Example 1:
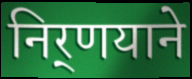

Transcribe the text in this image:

निर्णयाने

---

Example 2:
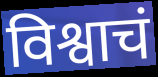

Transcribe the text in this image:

विश्वाचं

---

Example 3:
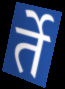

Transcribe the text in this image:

र्ते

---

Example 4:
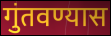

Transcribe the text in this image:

गुंतवण्यास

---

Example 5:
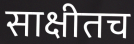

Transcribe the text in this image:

साक्षीतच